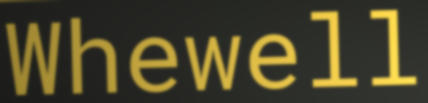
Whewell